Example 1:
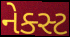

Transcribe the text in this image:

નેક્સ્ટ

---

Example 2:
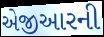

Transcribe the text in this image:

એજીઆરની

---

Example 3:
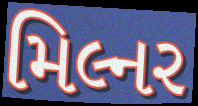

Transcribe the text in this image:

મિલ્નર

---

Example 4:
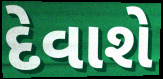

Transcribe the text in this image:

દેવાશે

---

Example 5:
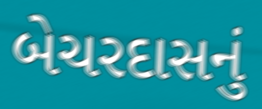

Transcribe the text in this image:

બેચરદાસનું